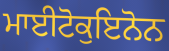
ਮਾਈਟੋਕੁਇਨੋਨ